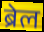
ब्रेल